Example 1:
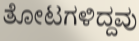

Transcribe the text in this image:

ತೋಟಗಳಿದ್ದವು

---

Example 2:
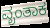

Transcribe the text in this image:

ವೃಂತಾಕ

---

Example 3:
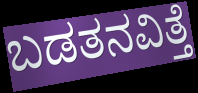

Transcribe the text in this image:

ಬಡತನವಿತ್ತೆ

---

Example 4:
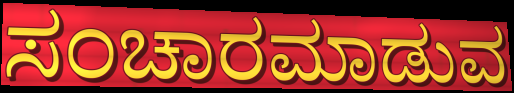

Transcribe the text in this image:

ಸಂಚಾರಮಾಡುವ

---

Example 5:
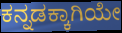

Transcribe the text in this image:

ಕನ್ನಡಕ್ಕಾಗಿಯೇ